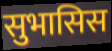
सुभासिस